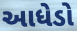
આધેડો